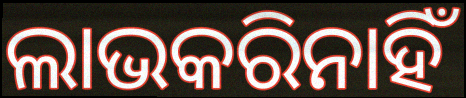
ଲାଭକରିନାହିଁ